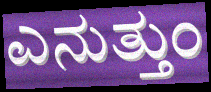
ಎನುತ್ತುಂ